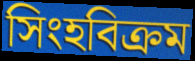
সিংহবিক্রম